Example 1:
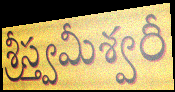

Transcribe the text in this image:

శ్రీస్త్వమీశ్వరీ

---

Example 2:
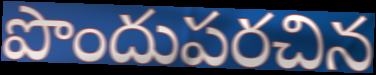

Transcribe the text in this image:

పొందుపరచిన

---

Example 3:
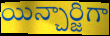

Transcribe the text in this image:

యిన్చార్జిగా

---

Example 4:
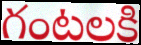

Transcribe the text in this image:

గంటలకి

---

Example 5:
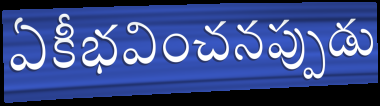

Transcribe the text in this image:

ఏకీభవించనప్పుడు